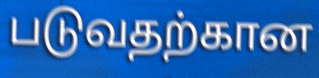
படுவதற்கான